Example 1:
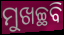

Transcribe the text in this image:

ମୁଖଚ୍ଛବି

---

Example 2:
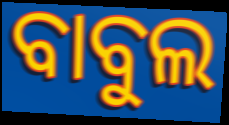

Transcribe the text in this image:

ବାବୁଲ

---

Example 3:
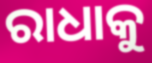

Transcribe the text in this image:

ରାଧାକୁ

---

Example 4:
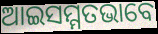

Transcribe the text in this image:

ଆଇସମ୍ମତଭାବେ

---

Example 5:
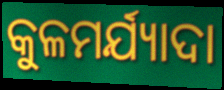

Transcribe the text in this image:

କୁଳମର୍ଯ୍ୟାଦା